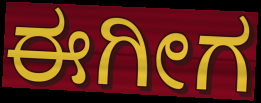
ಈಗೀಗ